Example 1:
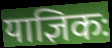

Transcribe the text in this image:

याज्ञिकः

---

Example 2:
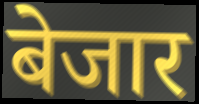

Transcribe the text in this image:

बेजार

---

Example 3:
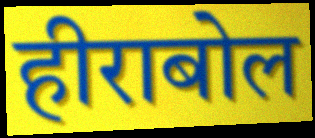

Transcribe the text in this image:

हीराबोल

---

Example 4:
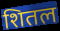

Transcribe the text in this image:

शितल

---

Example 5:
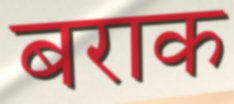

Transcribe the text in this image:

बराक